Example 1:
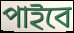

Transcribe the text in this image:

পাইবে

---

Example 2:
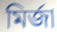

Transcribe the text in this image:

মির্জা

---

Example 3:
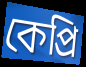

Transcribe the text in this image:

কেপ্রি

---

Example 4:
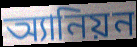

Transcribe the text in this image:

অ্যানিয়ন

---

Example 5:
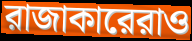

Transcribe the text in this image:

রাজাকারেরাও